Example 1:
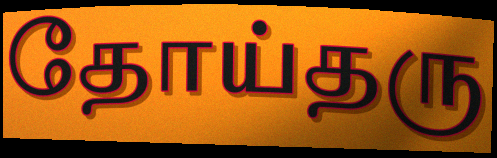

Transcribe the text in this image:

தோய்தரு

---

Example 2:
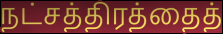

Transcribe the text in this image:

நட்சத்திரத்தைத்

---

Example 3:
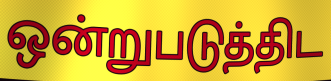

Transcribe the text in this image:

ஒன்றுபடுத்திட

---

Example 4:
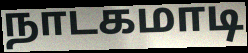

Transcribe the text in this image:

நாடகமாடி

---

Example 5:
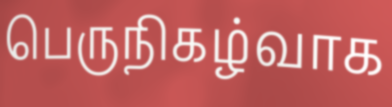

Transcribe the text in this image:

பெருநிகழ்வாக